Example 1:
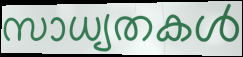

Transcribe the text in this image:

സാധ്യതകൾ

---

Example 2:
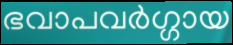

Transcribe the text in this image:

ഭവാപവർഗ്ഗായ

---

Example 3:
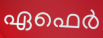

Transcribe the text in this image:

ഏഫെർ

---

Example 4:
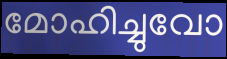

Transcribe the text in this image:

മോഹിച്ചുവോ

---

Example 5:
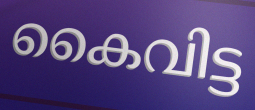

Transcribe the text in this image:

കൈവിട്ട